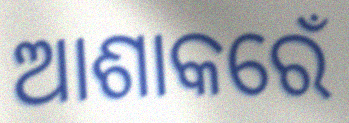
ଆଶାକରେଁ